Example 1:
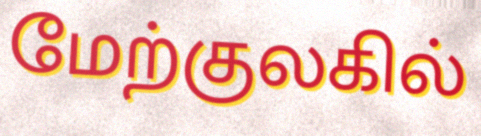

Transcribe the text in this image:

மேற்குலகில்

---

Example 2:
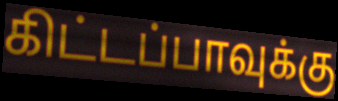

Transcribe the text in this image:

கிட்டப்பாவுக்கு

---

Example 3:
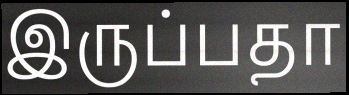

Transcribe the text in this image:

இருப்பதா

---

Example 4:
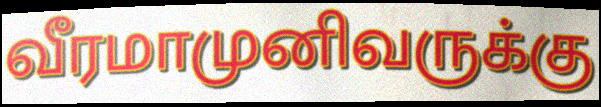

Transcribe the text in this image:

வீரமாமுனிவருக்கு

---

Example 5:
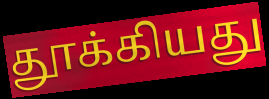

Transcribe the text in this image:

தூக்கியது